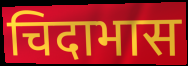
चिदाभास